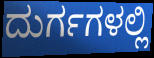
ದುರ್ಗಗಳಲ್ಲಿ